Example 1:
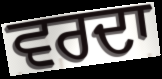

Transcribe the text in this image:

ਵਰਦਾ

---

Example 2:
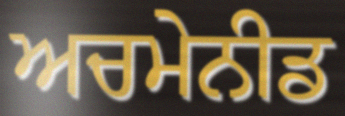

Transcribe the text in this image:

ਅਚਮੇਨੀਡ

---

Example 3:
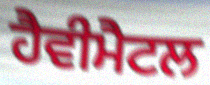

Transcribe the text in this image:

ਹੈਵੀਮੈਟਲ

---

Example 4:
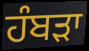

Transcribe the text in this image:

ਹੰਬੜਾ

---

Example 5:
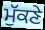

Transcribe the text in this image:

ਮੁੱਕਣੇ